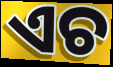
ଏଚ